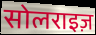
सोलराइज़